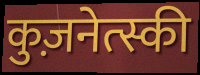
कुज़नेत्स्की